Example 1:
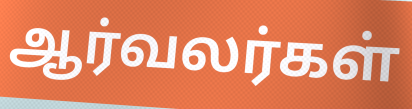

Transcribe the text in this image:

ஆர்வலர்கள்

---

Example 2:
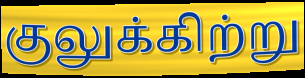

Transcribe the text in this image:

குலுக்கிற்று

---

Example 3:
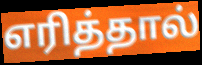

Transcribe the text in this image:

எரித்தால்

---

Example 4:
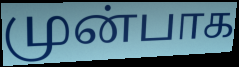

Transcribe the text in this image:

முன்பாக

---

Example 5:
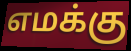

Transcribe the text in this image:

எமக்கு